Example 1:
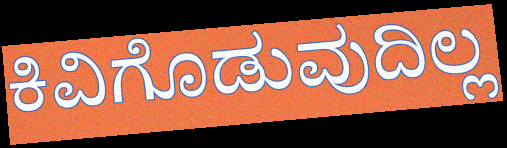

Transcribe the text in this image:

ಕಿವಿಗೊಡುವುದಿಲ್ಲ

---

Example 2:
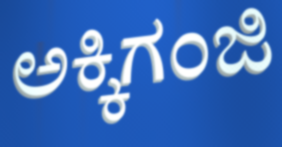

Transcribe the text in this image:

ಅಕ್ಕಿಗಂಜಿ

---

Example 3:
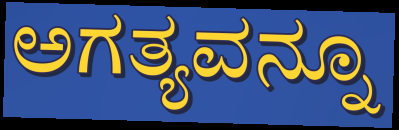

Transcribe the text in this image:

ಅಗತ್ಯವನ್ನೂ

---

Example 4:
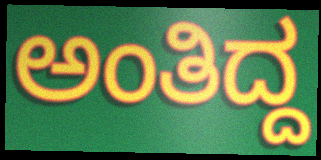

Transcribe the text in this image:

ಅಂತಿದ್ದ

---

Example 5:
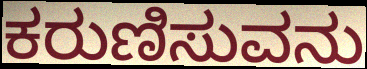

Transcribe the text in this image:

ಕರುಣಿಸುವನು